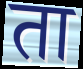
ता